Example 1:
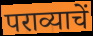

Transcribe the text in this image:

पराव्याचें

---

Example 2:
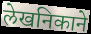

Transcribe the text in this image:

लेखनिकाने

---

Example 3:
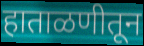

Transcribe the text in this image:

हाताळणीतून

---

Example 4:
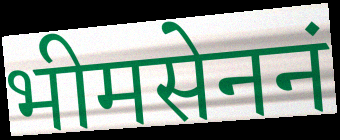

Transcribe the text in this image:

भीमसेननं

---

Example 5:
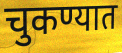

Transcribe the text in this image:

चुकण्यात